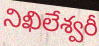
నిఖిలేశ్వరీ